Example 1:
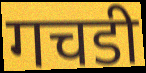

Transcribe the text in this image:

गचडी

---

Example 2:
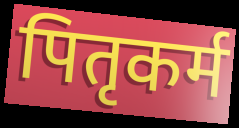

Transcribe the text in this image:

पितृकर्म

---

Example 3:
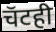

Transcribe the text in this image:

चॅटही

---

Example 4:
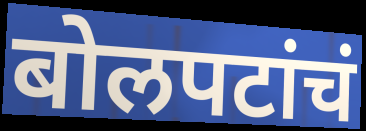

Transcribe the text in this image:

बोलपटांचं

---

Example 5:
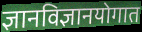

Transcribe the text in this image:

ज्ञानविज्ञानयोगात